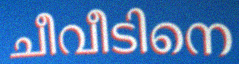
ചീവീടിനെ